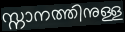
സ്നാനത്തിനുള്ള